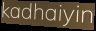
kadhaiyin